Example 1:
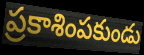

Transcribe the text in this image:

ప్రకాశింపకుండు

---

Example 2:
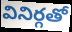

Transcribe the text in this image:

వినిర్గతో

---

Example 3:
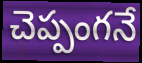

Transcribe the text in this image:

చెప్పంగనే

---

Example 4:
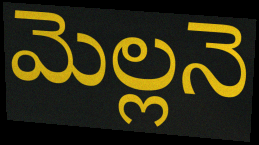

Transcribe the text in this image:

మెల్లనె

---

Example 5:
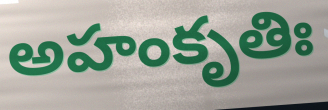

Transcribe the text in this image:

అహంకృతిః